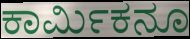
ಕಾರ್ಮಿಕನೂ